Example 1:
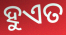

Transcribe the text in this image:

ହୁଏତ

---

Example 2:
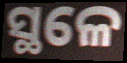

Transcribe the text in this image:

ସ୍ଥଳେ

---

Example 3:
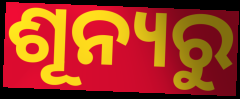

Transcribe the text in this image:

ଶୂନ୍ୟରୁ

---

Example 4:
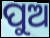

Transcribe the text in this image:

ପୁଅ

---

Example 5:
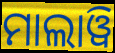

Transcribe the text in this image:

ମାଲାୱି